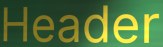
Header